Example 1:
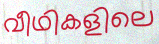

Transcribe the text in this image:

വീഥികളിലെ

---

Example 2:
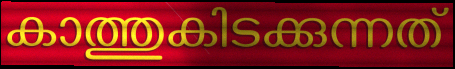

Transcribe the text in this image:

കാത്തുകിടക്കുന്നത്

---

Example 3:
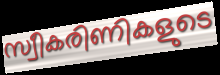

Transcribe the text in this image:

സ്വീകരിണികളുടെ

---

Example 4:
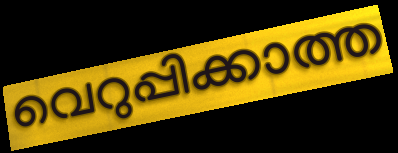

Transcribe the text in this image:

വെറുപ്പിക്കാത്ത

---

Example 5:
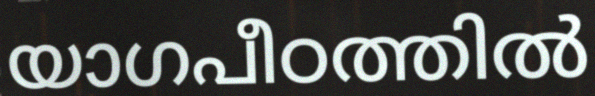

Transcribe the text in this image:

യാഗപീഠത്തിൽ